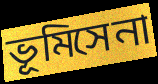
ভূমিসেনা